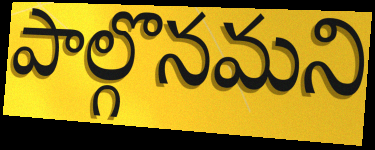
పాల్గొనమని